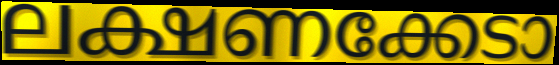
ലക്ഷണക്കേടാ